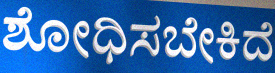
ಶೋಧಿಸಬೇಕಿದೆ